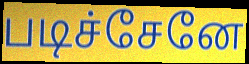
படிச்சேனே